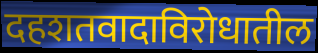
दहशतवादाविरोधातील